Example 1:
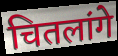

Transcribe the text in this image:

चितलांगे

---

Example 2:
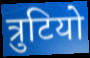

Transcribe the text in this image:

त्रुटियो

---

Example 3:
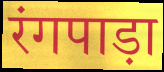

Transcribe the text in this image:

रंगपाड़ा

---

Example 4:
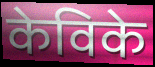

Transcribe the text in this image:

केविके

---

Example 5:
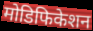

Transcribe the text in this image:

मोडिफिकेशन